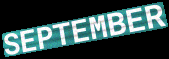
SEPTEMBER